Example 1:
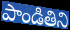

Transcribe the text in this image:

పాండితిని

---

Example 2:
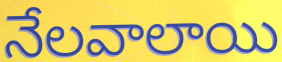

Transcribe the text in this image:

నేలవాలాయి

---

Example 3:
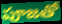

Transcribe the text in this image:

పూజతో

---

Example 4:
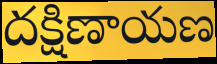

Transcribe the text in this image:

దక్షిణాయణ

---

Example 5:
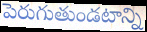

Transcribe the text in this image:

పెరుగుతుండటాన్ని